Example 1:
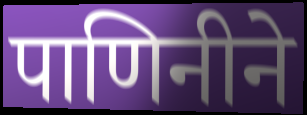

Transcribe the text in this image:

पाणिनीने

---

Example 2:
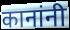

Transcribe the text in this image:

कानांनी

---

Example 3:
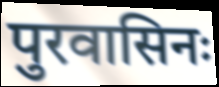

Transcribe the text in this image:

पुरवासिनः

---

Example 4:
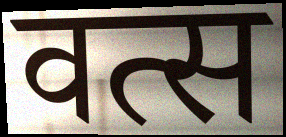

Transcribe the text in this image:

वत्स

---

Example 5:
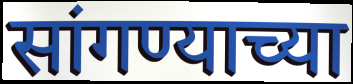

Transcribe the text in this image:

सांगण्याच्या